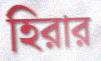
হিরার